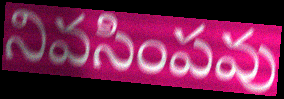
నివసింపవు